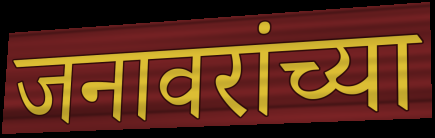
जनावरांच्या